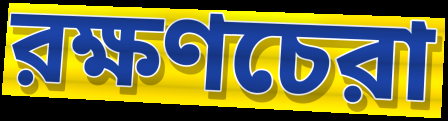
রক্ষণচেরা